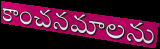
కాంచనమాలను